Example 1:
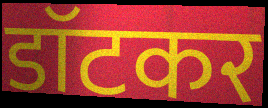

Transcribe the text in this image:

डॉटकर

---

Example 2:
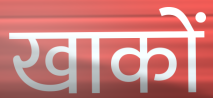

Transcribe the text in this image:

खाकों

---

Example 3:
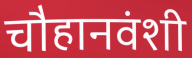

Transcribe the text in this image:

चौहानवंशी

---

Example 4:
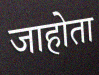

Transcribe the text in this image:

जाहोता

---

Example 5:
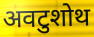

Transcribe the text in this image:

अवटुशोथ